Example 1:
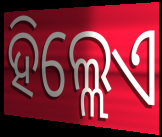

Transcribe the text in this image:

ହିଲ୍ଲେଏ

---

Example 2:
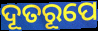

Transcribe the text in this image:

ଦୂତରୂପେ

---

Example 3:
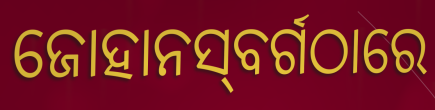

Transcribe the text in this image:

ଜୋହାନସ୍‌ବର୍ଗଠାରେ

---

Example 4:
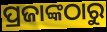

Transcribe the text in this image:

ପ୍ରଜାଙ୍କଠାରୁ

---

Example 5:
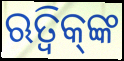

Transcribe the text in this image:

ଋତ୍ୱିକ୍‌ଙ୍କ